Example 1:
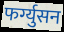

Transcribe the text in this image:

फर्ग्युसन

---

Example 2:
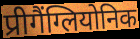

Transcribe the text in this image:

प्रीगैंग्लियोनिक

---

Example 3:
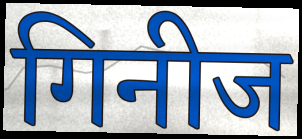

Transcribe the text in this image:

गिनीज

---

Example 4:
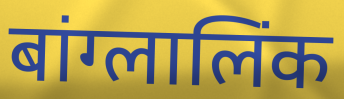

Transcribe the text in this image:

बांग्लालिंक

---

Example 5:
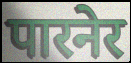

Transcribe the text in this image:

पारनेर